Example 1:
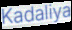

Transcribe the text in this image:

Kadaliya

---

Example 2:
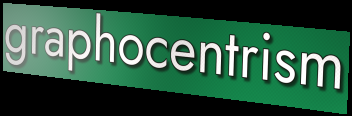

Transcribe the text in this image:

graphocentrism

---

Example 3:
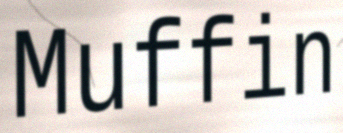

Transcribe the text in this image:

Muffin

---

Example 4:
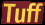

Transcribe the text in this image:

Tuff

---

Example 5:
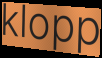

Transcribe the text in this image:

klopp